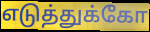
எடுத்துக்கோ